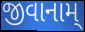
જીવાનામ્